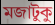
মজাটুকু